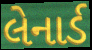
લેનાર્ડ